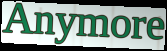
Anymore